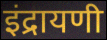
इंद्रायणी